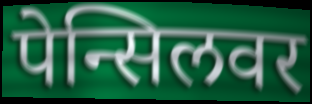
पेन्सिलवर